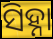
ସିହ୍ନା